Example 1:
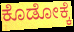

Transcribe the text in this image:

ಕೊಡೋಕ್ಕೆ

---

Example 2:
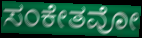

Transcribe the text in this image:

ಸಂಕೇತವೋ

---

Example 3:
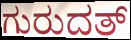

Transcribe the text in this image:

ಗುರುದತ್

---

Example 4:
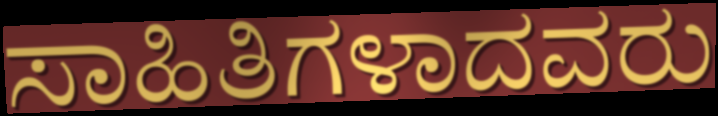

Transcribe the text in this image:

ಸಾಹಿತಿಗಳಾದವರು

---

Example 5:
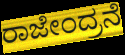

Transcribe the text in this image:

ರಾಜೇಂದ್ರನೆ